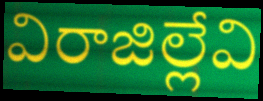
విరాజిల్లేవి